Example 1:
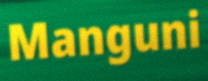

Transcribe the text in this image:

Manguni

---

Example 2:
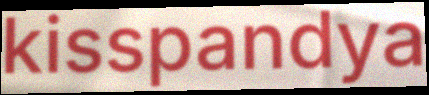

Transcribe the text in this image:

kisspandya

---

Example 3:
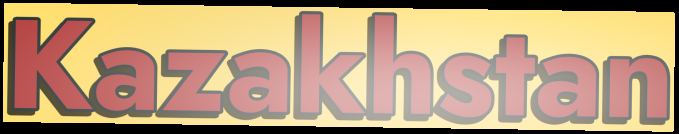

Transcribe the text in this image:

Kazakhstan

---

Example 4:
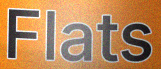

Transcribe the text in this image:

Flats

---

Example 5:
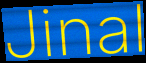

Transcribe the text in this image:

Jinal